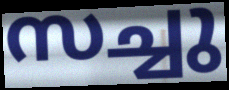
സച്ചു